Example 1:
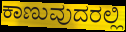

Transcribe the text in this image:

ಕಾಣುವುದರಲ್ಲಿ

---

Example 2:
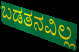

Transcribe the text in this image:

ಬಡತನವಿಲ್ಲ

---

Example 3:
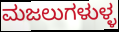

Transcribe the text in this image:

ಮಜಲುಗಳುಳ್ಳ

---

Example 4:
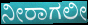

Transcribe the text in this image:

ನೀರಾಗಲೀ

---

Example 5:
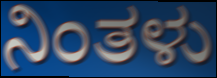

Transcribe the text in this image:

ನಿಂತಳು